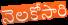
నెలకోసారి